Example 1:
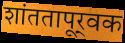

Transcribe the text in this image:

शांततापूर्वक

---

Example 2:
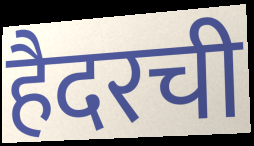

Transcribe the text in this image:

हैदरची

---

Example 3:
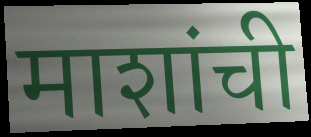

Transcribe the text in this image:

माशांची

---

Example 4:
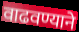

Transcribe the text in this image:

वाढवण्याने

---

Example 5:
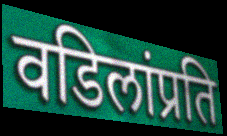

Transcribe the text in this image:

वडिलांप्रति